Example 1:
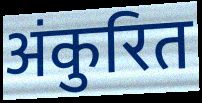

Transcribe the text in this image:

अंकुरित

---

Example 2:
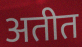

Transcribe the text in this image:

अतीत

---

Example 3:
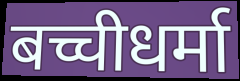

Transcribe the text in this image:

बच्चीधर्मा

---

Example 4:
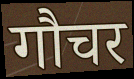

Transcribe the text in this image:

गौचर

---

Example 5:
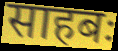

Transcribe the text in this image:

साहबः